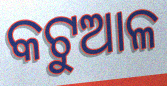
କଟୁଆଳ